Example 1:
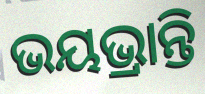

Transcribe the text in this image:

ଭୟଭ୍ରାନ୍ତି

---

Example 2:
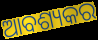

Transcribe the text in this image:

ଆବଶ୍ୟକର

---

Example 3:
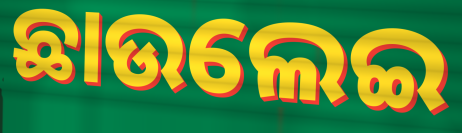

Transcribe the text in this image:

ଛାଉଲେଇ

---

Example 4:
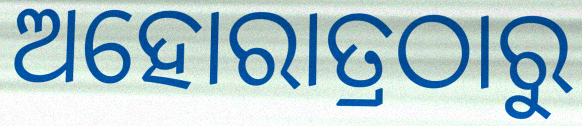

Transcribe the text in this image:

ଅହୋରାତ୍ରଠାରୁ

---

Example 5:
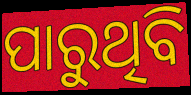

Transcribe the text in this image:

ପାରୁଥିବି